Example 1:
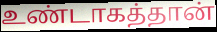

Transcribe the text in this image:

உண்டாகத்தான்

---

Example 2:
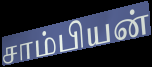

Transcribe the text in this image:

சாம்பியன்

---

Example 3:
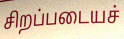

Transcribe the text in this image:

சிறப்படையச்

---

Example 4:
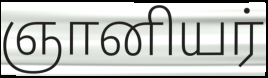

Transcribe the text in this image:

ஞானியர்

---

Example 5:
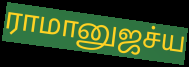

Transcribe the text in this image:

ராமானுஜச்ய